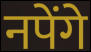
नपेंगे